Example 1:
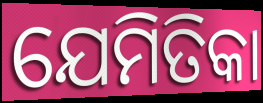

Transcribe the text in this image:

ଯେମିତିକା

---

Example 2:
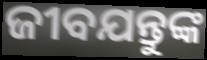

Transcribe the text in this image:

ଜୀବଯନ୍ତୁଙ୍କ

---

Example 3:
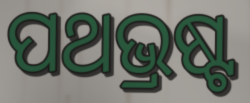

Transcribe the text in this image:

ପଥଭ୍ରଷ୍ଟ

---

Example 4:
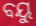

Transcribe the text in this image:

ବୟୁ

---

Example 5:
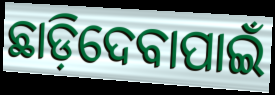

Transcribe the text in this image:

ଛାଡ଼ିଦେବାପାଇଁ